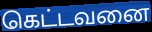
கெட்டவனை